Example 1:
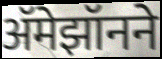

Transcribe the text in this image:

ॲमेझॉनने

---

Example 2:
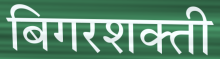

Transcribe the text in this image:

बिगरशक्ती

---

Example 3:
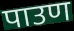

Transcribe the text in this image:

पाउण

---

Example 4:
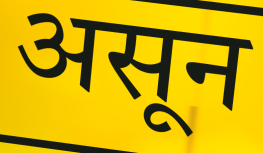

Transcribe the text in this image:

असून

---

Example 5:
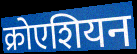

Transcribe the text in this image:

क्रोएशियन